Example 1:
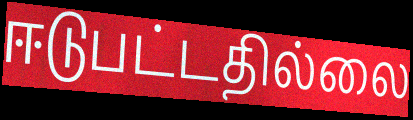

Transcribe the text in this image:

ஈடுபட்டதில்லை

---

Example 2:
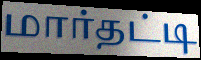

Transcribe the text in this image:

மார்தட்டி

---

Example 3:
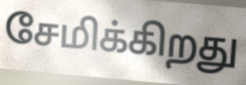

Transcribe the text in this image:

சேமிக்கிறது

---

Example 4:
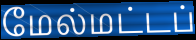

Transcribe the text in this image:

மேல்மட்டப்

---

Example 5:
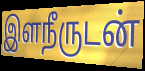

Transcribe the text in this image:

இளநீருடன்